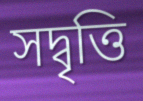
সদ্বৃত্তি